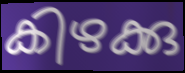
കിഴക്കു